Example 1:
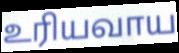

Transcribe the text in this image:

உரியவாய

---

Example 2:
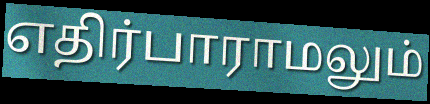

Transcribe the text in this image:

எதிர்பாராமலும்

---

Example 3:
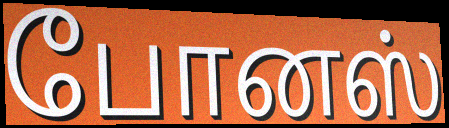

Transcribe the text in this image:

போனஸ்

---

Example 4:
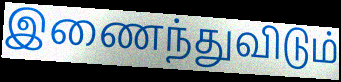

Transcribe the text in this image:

இணைந்துவிடும்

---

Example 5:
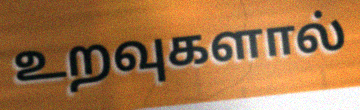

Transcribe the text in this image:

உறவுகளால்